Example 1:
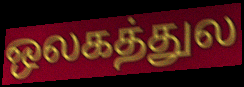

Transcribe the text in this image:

ஒலகத்துல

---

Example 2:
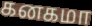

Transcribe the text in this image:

கனகமா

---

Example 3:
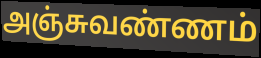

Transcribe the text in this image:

அஞ்சுவண்ணம்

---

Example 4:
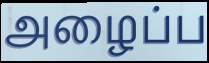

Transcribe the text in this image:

அழைப்ப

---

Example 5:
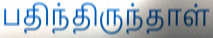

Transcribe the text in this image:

பதிந்திருந்தாள்